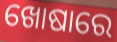
ଖୋଷାରେ